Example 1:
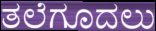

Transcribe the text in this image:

ತಲೆಗೂದಲು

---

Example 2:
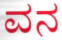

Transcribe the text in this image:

ವನ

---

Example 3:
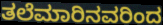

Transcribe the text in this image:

ತಲೆಮಾರಿನವರಿಂದ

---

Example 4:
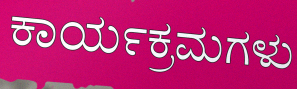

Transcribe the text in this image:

ಕಾರ್ಯಕ್ರಮಗಳು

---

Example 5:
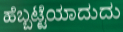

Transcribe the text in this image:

ಹೆಬ್ಬಟ್ಟೆಯಾದುದು